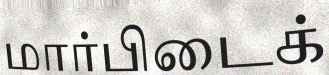
மார்பிடைக்